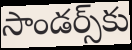
సాండర్స్‌కు